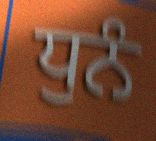
ਧੁਨੰ